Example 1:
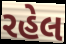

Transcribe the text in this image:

રહેલ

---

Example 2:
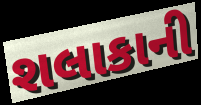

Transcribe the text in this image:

શલાકાની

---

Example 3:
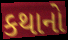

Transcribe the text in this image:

કથાનો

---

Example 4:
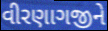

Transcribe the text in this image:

વીરણાગજીને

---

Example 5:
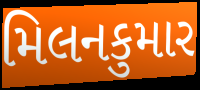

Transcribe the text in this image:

મિલનકુમાર